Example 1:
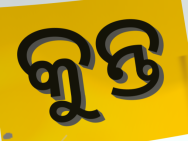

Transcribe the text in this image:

କୁନ୍ତ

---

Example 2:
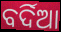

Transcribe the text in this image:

ବର୍ଦିଆ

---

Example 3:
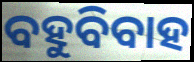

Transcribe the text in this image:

ବହୁବିବାହ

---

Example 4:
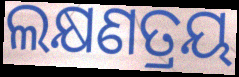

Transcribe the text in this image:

ଲକ୍ଷଣତ୍ରୟ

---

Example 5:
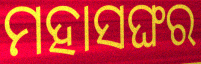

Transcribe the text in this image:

ମହାସଙ୍ଘର